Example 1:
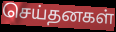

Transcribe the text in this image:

செய்தனகள்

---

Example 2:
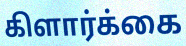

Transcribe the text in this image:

கிளார்க்கை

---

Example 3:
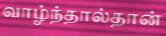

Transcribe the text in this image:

வாழ்ந்தால்தான்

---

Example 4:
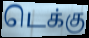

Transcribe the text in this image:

டெக்கு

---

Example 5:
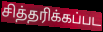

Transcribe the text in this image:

சித்தரிக்கப்பட